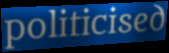
politicised